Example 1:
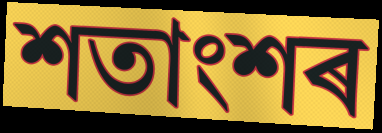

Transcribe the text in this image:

শতাংশৰ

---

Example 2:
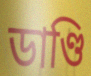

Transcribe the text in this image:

ডাণ্ডি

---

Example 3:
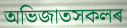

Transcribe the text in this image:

অভিজাতসকলৰ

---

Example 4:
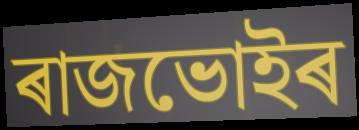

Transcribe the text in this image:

ৰাজভোইৰ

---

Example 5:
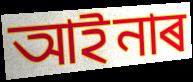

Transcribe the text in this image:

আইনাৰ